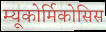
म्यूकोर्मिकोसिस